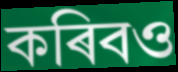
কৰিবও